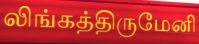
லிங்கத்திருமேனி